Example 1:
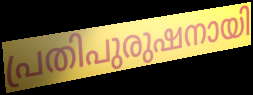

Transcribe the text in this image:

പ്രതിപുരുഷനായി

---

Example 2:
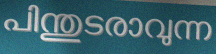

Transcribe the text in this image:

പിന്തുടരാവുന്ന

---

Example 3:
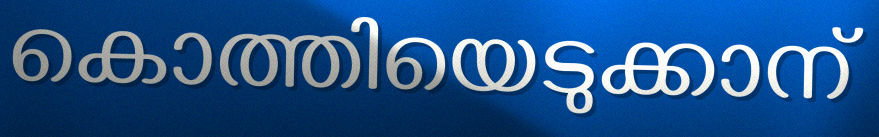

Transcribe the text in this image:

കൊത്തിയെടുക്കാന്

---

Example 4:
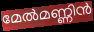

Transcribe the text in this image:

മേൽമണ്ണിൻ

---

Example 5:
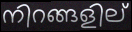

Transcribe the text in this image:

നിറങ്ങളില്